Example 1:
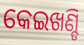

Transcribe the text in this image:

କେଇଖଣ୍ଡି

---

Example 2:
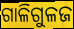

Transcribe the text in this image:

ଗାଳିଗୁଳଜ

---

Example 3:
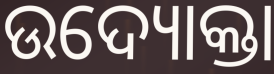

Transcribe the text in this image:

ଉଦ୍ୟୋକ୍ତା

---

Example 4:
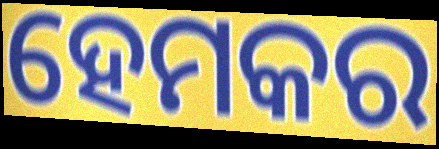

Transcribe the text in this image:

ହେମକର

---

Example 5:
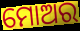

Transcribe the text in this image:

ମୋଅର